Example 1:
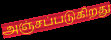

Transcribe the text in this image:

அஞ்சப்படுகிறது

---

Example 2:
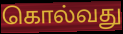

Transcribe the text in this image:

கொல்வது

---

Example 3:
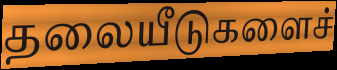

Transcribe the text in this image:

தலையீடுகளைச்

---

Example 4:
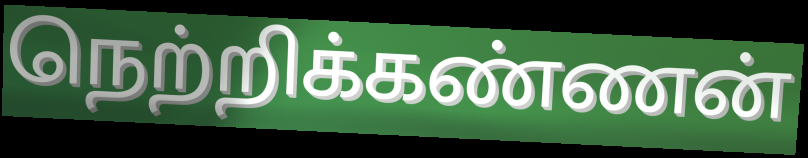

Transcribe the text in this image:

நெற்றிக்கண்ணன்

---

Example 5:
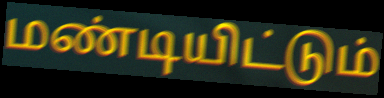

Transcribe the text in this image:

மண்டியிட்டும்